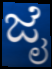
ಜೈ